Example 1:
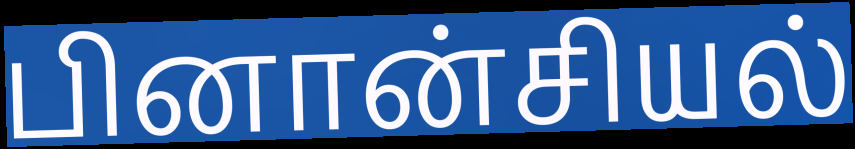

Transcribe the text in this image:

பினான்சியல்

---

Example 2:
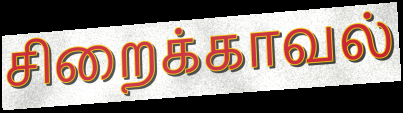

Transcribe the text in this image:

சிறைக்காவல்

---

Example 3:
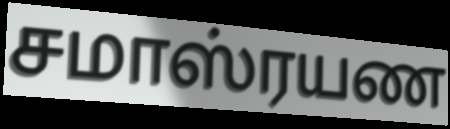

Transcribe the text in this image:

சமாஸ்ரயண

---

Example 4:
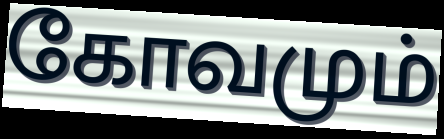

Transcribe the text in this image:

கோவமும்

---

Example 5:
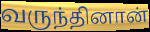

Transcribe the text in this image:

வருந்தினான்